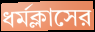
ধর্মক্লাসের